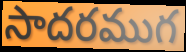
సాదరముగ